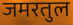
जमरतुल